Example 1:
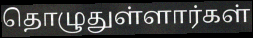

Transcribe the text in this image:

தொழுதுள்ளார்கள்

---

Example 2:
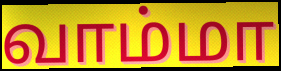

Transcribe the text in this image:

வாம்மா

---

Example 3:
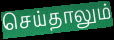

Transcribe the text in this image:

செய்தாலும்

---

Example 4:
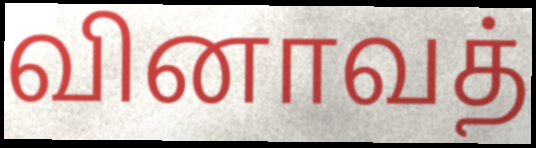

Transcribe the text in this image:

வினாவத்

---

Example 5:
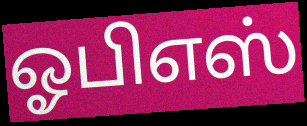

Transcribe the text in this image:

ஓபிஎஸ்